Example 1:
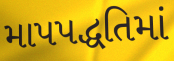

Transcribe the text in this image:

માપપદ્ધતિમાં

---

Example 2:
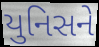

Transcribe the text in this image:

યુનિસને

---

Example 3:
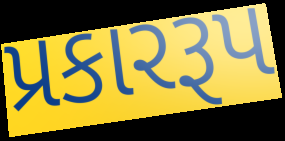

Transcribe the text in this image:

પ્રકારરૂપ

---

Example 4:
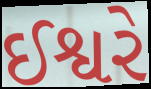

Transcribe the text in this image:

ઈશ્વરે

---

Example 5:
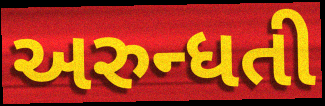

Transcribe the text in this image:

અરુન્ધતી